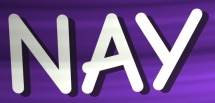
NAY